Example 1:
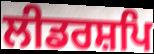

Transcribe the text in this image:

ਲੀਡਰਸ਼ਪਿ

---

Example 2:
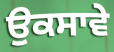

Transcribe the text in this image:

ਉਕਸਾਵੇ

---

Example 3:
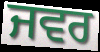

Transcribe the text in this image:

ਜਵਰ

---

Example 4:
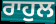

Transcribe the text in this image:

ਰਾਹੁਲ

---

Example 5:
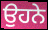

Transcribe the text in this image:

ਉਹਨੇ